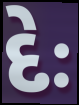
દેઃ